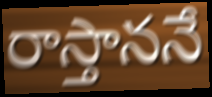
రాస్తాననే